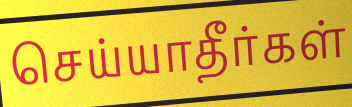
செய்யாதீர்கள்